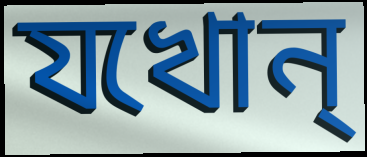
যখোন্